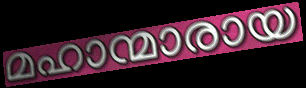
മഹാന്മാരായ